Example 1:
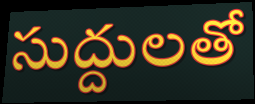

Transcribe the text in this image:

సుద్దులతో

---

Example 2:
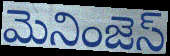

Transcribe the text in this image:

మెనింజెస్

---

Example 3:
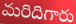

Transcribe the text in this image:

మరిదిగారు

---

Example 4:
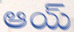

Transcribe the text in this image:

ఆయ్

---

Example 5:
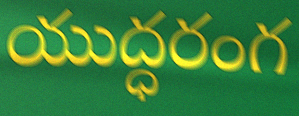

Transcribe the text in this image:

యుద్ధరంగ